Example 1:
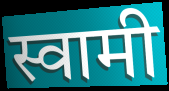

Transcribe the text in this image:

स्वामी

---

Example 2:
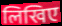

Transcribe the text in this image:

लिखिए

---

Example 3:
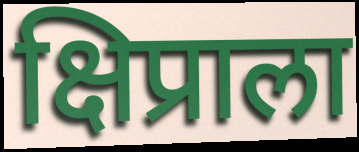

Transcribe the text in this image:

क्षिप्राला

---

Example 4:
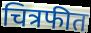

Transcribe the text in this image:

चित्रफीत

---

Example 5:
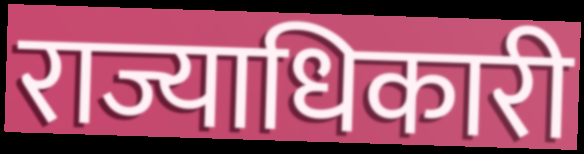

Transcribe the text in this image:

राज्याधिकारी